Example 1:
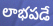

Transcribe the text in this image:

లాభపడే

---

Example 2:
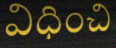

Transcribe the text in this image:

విధించి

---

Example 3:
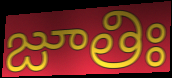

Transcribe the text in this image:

జూతిః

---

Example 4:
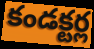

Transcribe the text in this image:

కండక్టర్ల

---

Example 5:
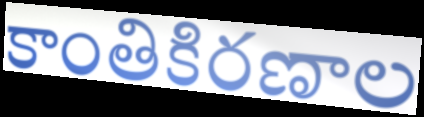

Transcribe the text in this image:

కాంతికిరణాల